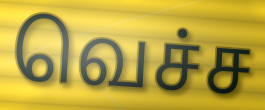
வெச்ச